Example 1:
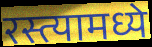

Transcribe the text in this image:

रस्त्यामध्ये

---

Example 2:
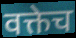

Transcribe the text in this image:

वक्तेच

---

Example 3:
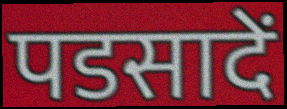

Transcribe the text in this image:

पडसादें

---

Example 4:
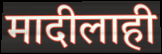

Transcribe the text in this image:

मादीलाही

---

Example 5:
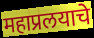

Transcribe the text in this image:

महाप्रलयाचे